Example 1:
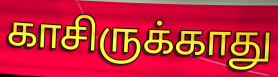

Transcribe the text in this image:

காசிருக்காது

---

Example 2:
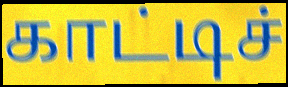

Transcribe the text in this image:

காட்டிச்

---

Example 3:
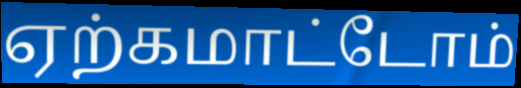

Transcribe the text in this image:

ஏற்கமாட்டோம்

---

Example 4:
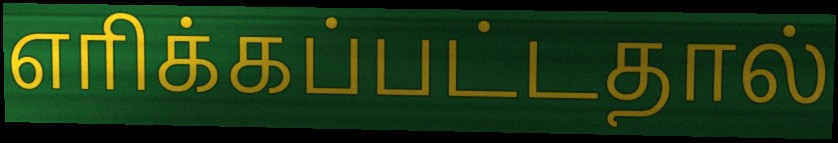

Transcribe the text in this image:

எரிக்கப்பட்டதால்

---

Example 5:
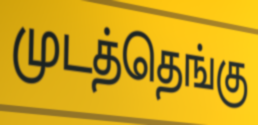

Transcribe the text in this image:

முடத்தெங்கு